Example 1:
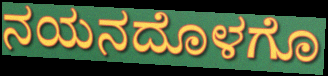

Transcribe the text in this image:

ನಯನದೊಳಗೊ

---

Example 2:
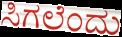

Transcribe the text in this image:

ಸಿಗಲೆಂದು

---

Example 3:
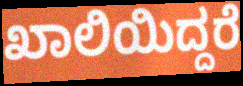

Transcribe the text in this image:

ಖಾಲಿಯಿದ್ದರೆ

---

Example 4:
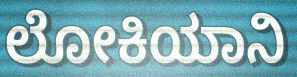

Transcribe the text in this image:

ಲೋಕಿಯಾನಿ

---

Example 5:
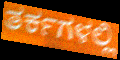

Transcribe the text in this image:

ತರ್ಕಗಳಲ್ಲಿ